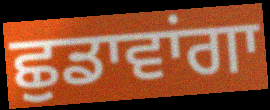
ਛੁਡਾਵਾਂਗਾ